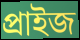
প্ৰাইজ